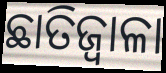
ଛାତିଜ୍ୱାଳା